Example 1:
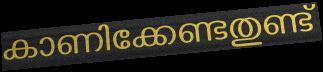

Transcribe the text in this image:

കാണിക്കേണ്ടതുണ്ട്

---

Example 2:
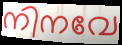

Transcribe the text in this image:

നിനവേ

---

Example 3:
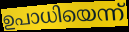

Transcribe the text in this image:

ഉപാധിയെന്ന്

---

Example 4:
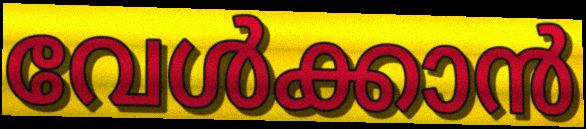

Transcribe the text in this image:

വേൾക്കാൻ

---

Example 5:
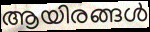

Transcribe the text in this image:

ആയിരങ്ങൾ